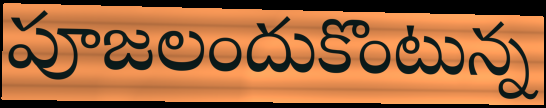
పూజలందుకొంటున్న